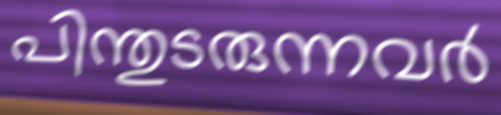
പിന്തുടരുന്നവർ